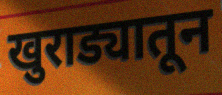
खुराड्यातून